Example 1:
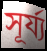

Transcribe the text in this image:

সূৰ্য্য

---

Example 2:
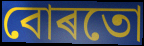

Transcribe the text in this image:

বোৰতো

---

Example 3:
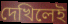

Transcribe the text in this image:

দেখিলেই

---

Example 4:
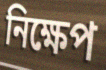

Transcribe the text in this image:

নিক্ষেপ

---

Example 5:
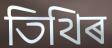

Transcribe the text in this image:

তিথিৰ